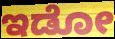
ಇಡೋ